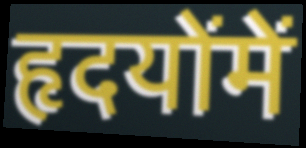
हृदयोंमें